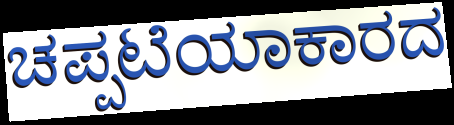
ಚಪ್ಪಟೆಯಾಕಾರದ